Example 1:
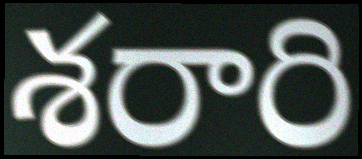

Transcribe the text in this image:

శరారి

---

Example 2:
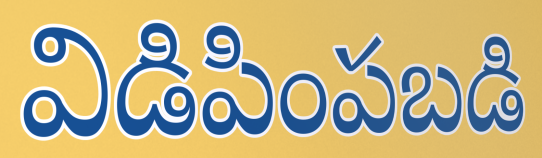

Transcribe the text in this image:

విడిపింపబడి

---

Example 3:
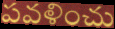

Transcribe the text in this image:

పవళించు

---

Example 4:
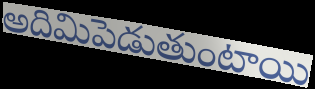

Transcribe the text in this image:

అదిమిపెడుతుంటాయి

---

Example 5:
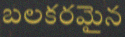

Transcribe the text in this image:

బలకరమైన